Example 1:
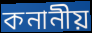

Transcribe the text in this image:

কনানীয়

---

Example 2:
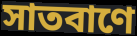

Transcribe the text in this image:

সাতবাণে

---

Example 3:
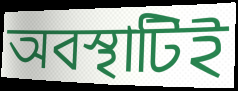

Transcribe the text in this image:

অবস্থাটিই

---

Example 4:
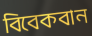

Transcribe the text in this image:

বিবেকবান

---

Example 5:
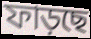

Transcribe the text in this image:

ফাড়ছে